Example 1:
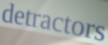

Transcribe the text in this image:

detractors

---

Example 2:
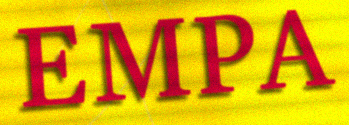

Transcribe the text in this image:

EMPA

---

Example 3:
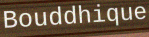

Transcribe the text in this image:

Bouddhique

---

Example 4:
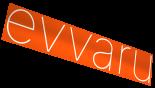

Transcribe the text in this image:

evvaru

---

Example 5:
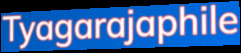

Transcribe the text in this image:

Tyagarajaphile